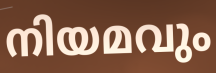
നിയമവും